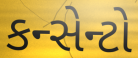
કન્સેન્ટો